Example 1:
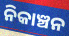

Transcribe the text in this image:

ନିକାଞ୍ଚନ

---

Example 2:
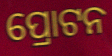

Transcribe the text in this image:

ପ୍ରୋଟନ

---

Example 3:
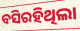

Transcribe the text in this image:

ବସିରହିଥିଲା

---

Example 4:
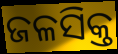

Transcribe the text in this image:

ଜଳସିକ୍ତ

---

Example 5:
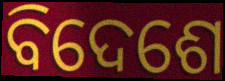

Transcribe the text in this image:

ବିଦେଶେ